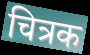
चित्रक